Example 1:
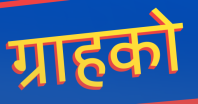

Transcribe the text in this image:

ग्राहको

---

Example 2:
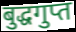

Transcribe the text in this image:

बुद्धगुप्त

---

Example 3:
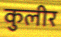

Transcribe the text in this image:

कुलीर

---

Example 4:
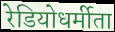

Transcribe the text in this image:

रेडियोधर्मीता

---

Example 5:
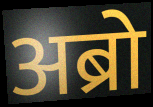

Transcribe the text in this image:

अब्रो